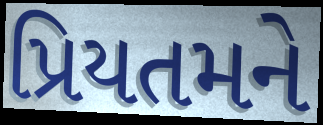
પ્રિયતમને